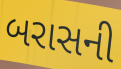
બરાસની